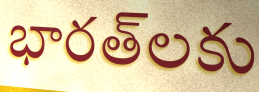
భారత్‌లకు